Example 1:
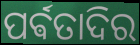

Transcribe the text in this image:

ପର୍ଵତାଦିର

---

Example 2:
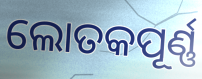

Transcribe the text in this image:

ଲୋତକପୂର୍ଣ୍ଣ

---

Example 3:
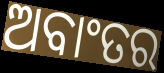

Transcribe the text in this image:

ଅବାଂତର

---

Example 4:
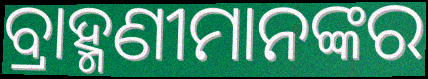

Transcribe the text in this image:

ବ୍ରାହ୍ମଣୀମାନଙ୍କର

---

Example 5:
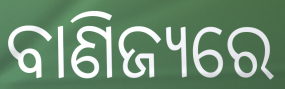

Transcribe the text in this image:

ବାଣିଜ୍ୟରେ